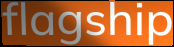
flagship